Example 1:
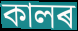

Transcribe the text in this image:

কালৰ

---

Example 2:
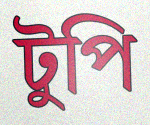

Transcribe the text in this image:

টুপি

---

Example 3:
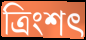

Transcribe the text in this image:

ত্ৰিংশৎ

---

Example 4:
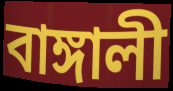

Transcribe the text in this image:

বাঙ্গালী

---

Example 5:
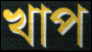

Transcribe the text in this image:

খাপ